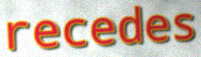
recedes